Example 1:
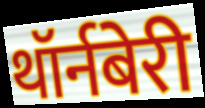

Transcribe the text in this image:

थॉर्नबेरी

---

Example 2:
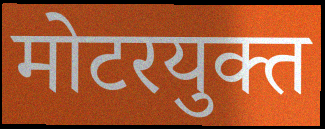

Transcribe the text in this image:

मोटरयुक्त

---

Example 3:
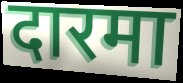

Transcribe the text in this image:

दारमा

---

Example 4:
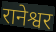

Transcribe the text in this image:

रानेश्वर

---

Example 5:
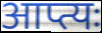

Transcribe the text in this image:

आप्त्यः